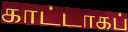
காட்டாகப்